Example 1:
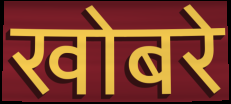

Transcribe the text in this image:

खोबरे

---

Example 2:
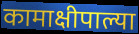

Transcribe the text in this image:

कामाक्षीपाल्या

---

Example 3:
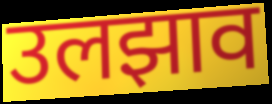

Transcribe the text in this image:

उलझाव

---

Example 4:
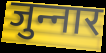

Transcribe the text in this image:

जुन्नार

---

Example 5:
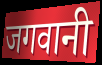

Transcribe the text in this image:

जगवानी